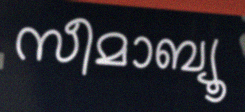
സീമാബ്യൂ